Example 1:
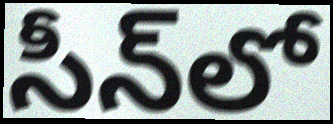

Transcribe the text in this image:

సీన్‌లో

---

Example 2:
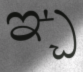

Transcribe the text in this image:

ఞ్చ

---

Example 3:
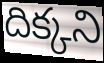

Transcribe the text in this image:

దిక్కని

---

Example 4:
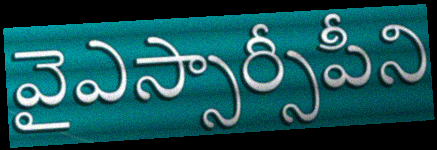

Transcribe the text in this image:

వైఎస్సార్సీపీని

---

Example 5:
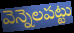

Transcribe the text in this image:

వెన్నెలపట్టు